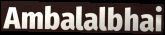
Ambalalbhai